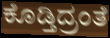
ಕೊಡ್ತಿದ್ರಂತೆ